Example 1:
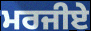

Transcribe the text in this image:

ਮਰਜੀਏ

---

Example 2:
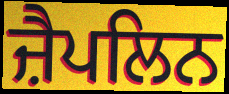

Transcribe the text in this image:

ਜ਼ੈਪਲਿਨ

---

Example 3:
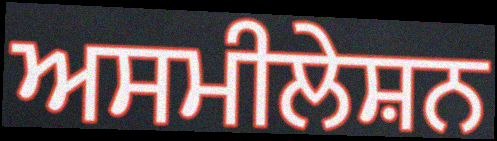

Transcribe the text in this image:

ਅਸਮੀਲੇਸ਼ਨ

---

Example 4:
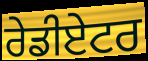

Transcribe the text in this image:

ਰੇਡੀਏਟਰ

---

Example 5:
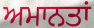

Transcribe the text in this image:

ਅਮਾਨਤਾਂ